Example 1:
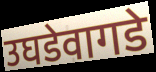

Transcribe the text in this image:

उघडेवागडे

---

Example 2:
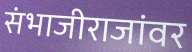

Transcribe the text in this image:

संभाजीराजांवर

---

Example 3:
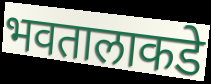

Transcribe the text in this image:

भवतालाकडे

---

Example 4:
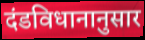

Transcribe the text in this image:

दंडविधानानुसार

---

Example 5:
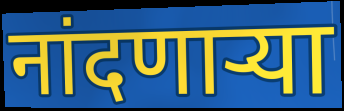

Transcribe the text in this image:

नांदणार्‍या